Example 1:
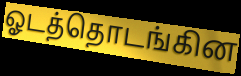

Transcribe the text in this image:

ஓடத்தொடங்கின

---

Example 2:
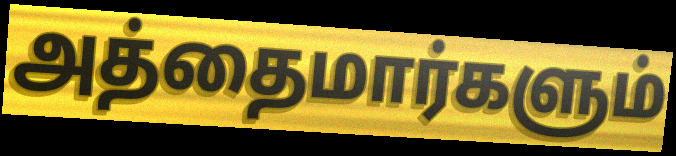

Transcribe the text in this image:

அத்தைமார்களும்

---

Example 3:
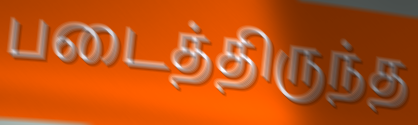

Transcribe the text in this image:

படைத்திருந்த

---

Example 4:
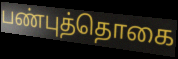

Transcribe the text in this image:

பண்புத்தொகை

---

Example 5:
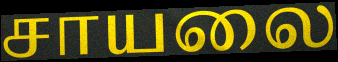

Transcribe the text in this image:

சாயலை